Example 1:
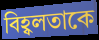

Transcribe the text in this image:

বিহ্বলতাকে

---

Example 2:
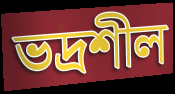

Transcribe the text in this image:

ভদ্রশীল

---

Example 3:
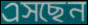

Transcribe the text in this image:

এসছেন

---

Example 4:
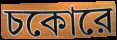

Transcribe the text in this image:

চকোরে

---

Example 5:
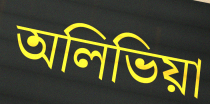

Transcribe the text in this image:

অলিভিয়া